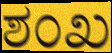
ಶಂಖ